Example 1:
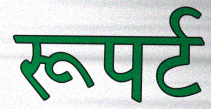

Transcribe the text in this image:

रूपर्ट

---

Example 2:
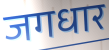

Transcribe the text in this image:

जगधार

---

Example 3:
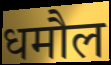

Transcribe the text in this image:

धमौल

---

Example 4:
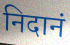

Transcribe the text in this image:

निदानं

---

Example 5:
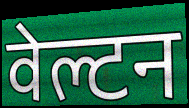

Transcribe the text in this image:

वेल्टन